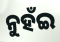
ନୁହଁଇ